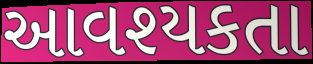
આવશ્યકતા